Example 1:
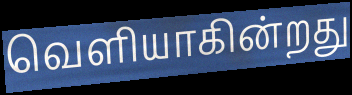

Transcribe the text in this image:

வெளியாகின்றது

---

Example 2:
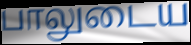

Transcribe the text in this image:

பாலுடைய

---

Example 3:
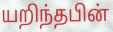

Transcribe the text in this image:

யறிந்தபின்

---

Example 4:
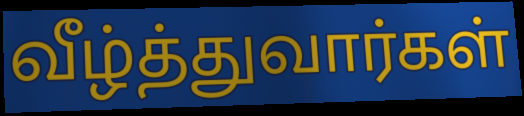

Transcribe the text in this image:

வீழ்த்துவார்கள்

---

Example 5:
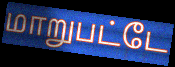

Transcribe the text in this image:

மாறுபட்டே